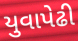
યુવાપેઢી